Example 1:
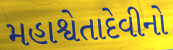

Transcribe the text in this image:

મહાશ્વેતાદેવીનો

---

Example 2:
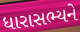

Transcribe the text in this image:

ધારાસભ્યને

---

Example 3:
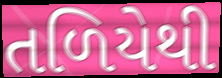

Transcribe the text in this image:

તળિયેથી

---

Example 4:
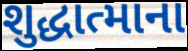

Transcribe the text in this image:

શુદ્ધાત્માના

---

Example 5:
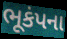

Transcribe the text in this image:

ભૂકંપના